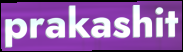
prakashit